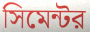
সিমেন্টর